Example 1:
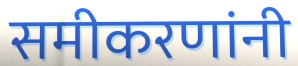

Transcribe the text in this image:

समीकरणांनी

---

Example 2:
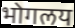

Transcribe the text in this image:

भोगलय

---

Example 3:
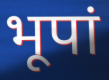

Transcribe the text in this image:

भूपां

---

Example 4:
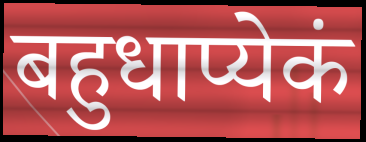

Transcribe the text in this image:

बहुधाप्येकं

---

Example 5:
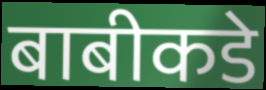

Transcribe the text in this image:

बाबीकडे